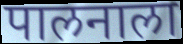
पालनाला